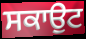
ਸਕਾਉਟ